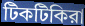
টিকটিকিরা